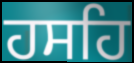
ਹਸਹਿ